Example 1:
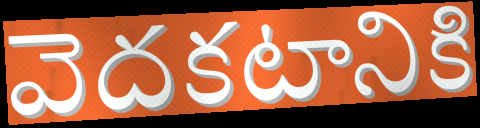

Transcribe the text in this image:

వెదకటానికి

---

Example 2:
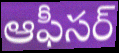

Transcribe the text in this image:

ఆఫీసర్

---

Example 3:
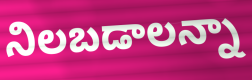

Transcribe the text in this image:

నిలబడాలన్నా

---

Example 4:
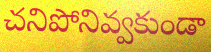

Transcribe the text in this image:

చనిపోనివ్వకుండా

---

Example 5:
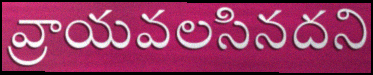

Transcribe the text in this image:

వ్రాయవలసినదని